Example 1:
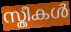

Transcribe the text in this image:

സ്തീകൾ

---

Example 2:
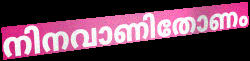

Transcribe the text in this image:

നിനവാണിതോണം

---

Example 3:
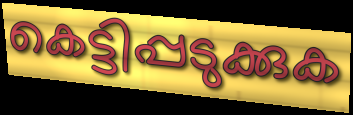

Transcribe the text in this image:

കെട്ടിപ്പടുക്കുക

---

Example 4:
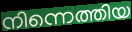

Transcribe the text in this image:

നിന്നെത്തിയ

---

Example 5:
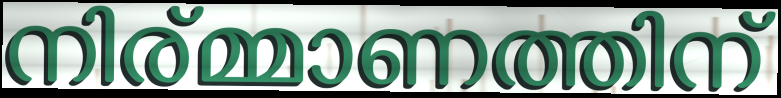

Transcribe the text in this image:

നിര്മ്മാണത്തിന്